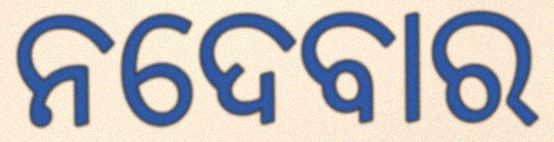
ନଦେବାର